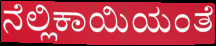
ನೆಲ್ಲಿಕಾಯಿಯಂತೆ